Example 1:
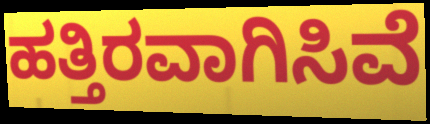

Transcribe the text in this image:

ಹತ್ತಿರವಾಗಿಸಿವೆ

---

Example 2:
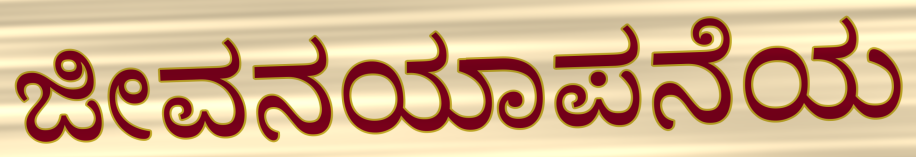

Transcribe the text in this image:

ಜೀವನಯಾಪನೆಯ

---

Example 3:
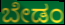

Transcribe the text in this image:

ಬೇಡಂ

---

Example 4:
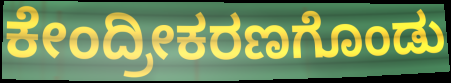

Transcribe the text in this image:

ಕೇಂದ್ರೀಕರಣಗೊಂಡು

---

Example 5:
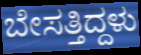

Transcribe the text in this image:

ಬೇಸತ್ತಿದ್ದಳು